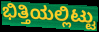
ಭಿತ್ತಿಯಲ್ಲಿಟ್ಟು